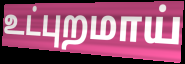
உட்புறமாய்